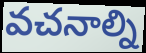
వచనాల్ని